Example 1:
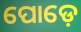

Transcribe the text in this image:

ପୋଡ଼େ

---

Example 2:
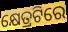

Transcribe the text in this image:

କ୍ଷେତ୍ରଟିରେ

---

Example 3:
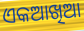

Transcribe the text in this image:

ଏକଆଖିଆ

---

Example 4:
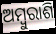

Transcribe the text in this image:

ଅମ୍ୱୁରାଶି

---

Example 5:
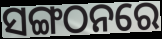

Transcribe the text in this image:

ସଙ୍ଗଠନରେ